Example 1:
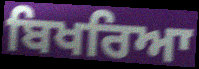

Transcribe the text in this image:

ਬਿਖਰਿਆ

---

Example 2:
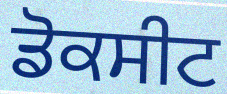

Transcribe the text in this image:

ਡੋਕਸੀਟ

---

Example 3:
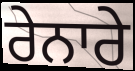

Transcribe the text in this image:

ਰੇਨਾਰੇ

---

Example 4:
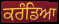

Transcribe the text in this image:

ਕਰੰਡਿਆ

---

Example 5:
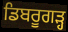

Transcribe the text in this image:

ਡਿਬਰੂਗੜ੍ਹ